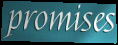
promises